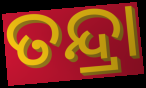
ତନ୍ଦ୍ରା